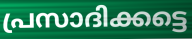
പ്രസാദിക്കട്ടെ